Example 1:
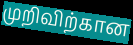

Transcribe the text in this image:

முறிவிற்கான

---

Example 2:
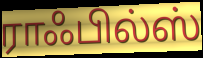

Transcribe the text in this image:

ராஃபில்ஸ்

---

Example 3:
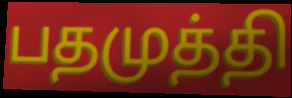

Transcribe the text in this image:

பதமுத்தி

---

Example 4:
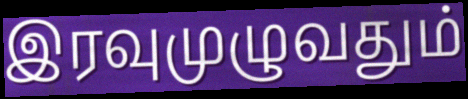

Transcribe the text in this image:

இரவுமுழுவதும்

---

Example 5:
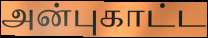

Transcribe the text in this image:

அன்புகாட்ட